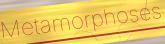
Metamorphoses